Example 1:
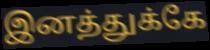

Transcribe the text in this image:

இனத்துக்கே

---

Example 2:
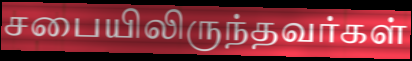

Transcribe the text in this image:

சபையிலிருந்தவர்கள்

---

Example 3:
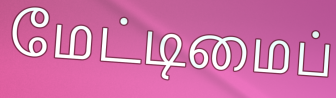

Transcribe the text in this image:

மேட்டிமைப்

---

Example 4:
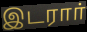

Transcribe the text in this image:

இடரார்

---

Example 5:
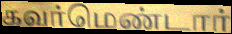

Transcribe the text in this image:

கவர்மெண்டார்